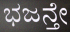
ಭಜನ್ತೇ